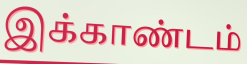
இக்காண்டம்